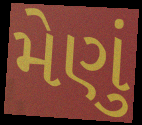
મેણું